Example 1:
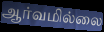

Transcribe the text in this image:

ஆர்வமில்லை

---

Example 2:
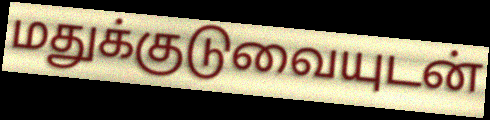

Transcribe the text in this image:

மதுக்குடுவையுடன்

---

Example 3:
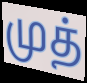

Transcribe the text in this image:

முத்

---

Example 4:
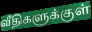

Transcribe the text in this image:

வீதிகளுக்குள்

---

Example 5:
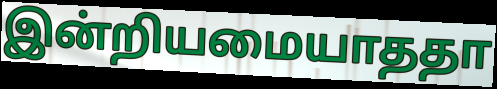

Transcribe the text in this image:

இன்றியமையாததா